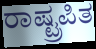
ರಾಷ್ಟ್ರಪಿತ